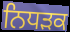
ਨਿਧਡ਼ਕ